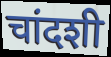
चांदशी